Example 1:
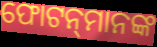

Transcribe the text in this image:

ଫୋଟନ୍‍ମାନଙ୍କ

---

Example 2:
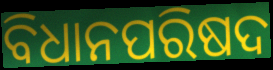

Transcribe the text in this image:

ବିଧାନପରିଷଦ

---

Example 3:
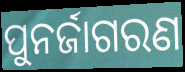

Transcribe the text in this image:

ପୁନର୍ଜାଗରଣ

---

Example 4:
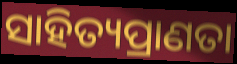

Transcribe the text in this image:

ସାହିତ୍ୟପ୍ରାଣତା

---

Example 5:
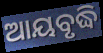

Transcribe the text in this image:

ଆୟବୃଦ୍ଧି